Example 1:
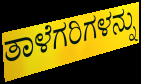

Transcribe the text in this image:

ತಾಳೆಗರಿಗಳನ್ನು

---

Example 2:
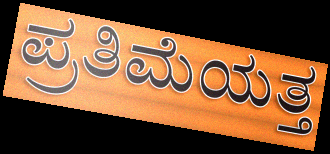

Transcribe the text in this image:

ಪ್ರತಿಮೆಯತ್ತ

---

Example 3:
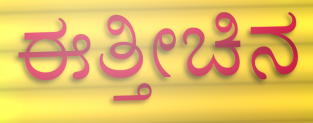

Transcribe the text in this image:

ಈತ್ತೀಚಿನ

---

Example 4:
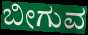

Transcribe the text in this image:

ಬೀಗುವ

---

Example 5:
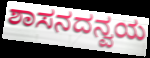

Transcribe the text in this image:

ಶಾಸನದನ್ವಯ